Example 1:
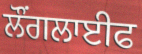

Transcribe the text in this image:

ਲੌਂਗਲਾਈਫ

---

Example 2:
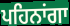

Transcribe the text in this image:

ਪਹਿਨਾਂਗਾ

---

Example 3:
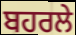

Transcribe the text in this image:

ਬਹਰਲੇ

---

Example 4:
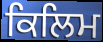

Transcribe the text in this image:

ਕਿਲਿਮ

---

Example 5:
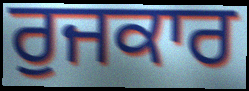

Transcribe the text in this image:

ਰੁਜਕਾਰ